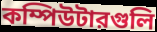
কম্পিউটারগুলি